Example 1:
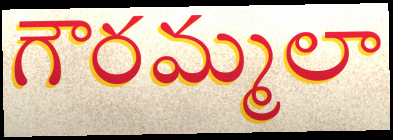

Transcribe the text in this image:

గౌరమ్మలా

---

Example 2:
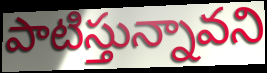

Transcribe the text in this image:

పాటిస్తున్నావని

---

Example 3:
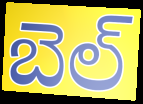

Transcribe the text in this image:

బెల్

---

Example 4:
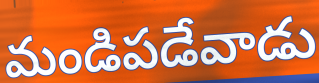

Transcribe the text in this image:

మండిపడేవాడు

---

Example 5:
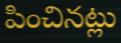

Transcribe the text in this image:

పించినట్లు